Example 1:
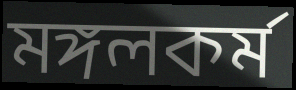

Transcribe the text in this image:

মঙ্গলকর্ম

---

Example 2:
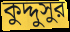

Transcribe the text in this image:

কুদ্দুসুর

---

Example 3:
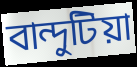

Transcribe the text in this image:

বান্দুটিয়া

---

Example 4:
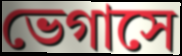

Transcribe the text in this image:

ভেগাসে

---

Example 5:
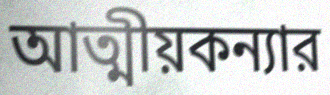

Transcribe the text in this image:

আত্মীয়কন্যার